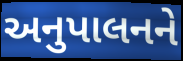
અનુપાલનને